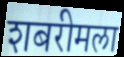
शबरीमला